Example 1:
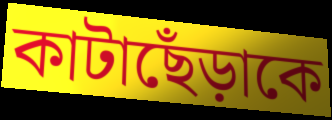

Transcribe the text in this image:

কাটাছেঁড়াকে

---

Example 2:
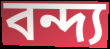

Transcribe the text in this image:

বন্দ্য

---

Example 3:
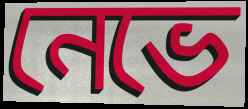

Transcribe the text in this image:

নেভে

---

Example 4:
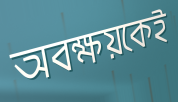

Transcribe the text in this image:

অবক্ষয়কেই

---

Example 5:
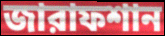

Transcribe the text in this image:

জারাফশান